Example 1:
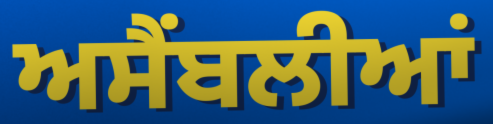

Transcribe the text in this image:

ਅਸੈਂਬਲੀਆਂ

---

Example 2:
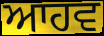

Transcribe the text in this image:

ਆਹਵ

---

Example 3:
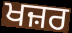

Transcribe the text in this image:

ਖਜ਼ਰ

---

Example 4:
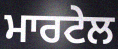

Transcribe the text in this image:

ਮਾਰਟੇਲ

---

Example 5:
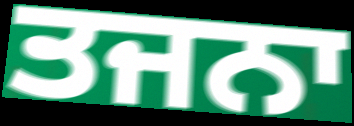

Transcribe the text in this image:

ਤਜਨਾ